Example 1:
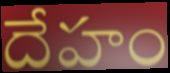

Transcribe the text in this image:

దేహం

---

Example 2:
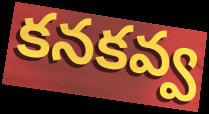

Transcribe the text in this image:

కనకవ్వ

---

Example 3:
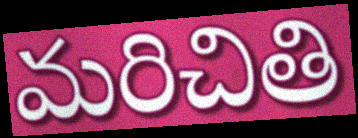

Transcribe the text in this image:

మరిచితి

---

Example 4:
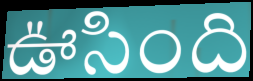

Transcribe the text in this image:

ఊసింది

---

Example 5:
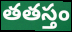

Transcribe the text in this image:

తతస్తం